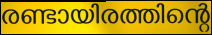
രണ്ടായിരത്തിന്റെ